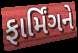
ફાર્મિંગને